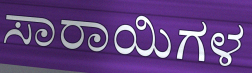
ಸಾರಾಯಿಗಳ